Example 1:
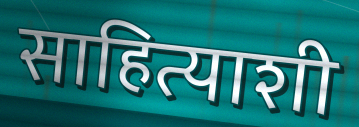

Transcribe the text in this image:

साहित्याशी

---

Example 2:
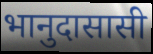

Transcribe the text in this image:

भानुदासासी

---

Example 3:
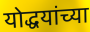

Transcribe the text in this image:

योद्धयांच्या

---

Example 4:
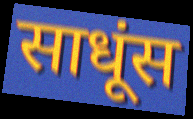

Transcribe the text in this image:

साधूंस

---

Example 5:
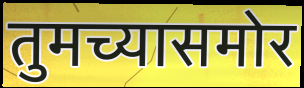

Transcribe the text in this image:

तुमच्यासमोर